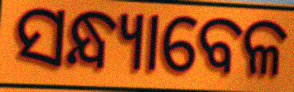
ସନ୍ଧ୍ୟାବେଳ